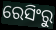
ରେସିଂରୁ